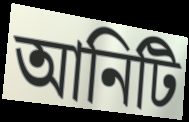
আনিটি